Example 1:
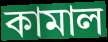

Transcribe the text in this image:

কামাল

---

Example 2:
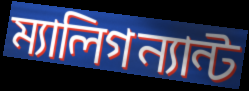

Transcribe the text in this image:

ম্যালিগন্যান্ট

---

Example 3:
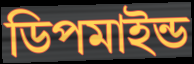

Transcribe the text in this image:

ডিপমাইন্ড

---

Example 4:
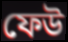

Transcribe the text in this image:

ফেউ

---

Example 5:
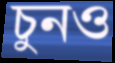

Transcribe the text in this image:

চুনও